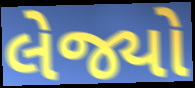
લેજ્યો